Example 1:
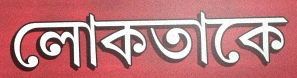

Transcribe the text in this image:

লোকতাকে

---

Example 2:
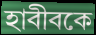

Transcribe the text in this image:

হাবীবকে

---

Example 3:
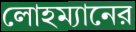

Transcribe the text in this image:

লোহম্যানের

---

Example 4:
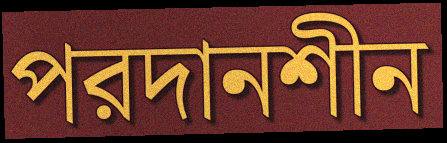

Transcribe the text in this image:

পরদানশীন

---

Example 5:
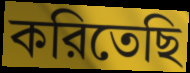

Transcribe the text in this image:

করিতেছি